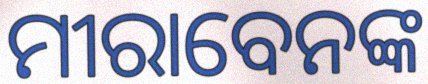
ମୀରାବେନଙ୍କ